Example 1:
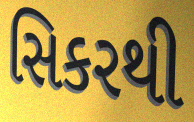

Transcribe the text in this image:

સિકરથી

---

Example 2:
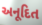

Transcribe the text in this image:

અનૂદિત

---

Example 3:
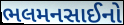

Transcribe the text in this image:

ભલમનસાઈનો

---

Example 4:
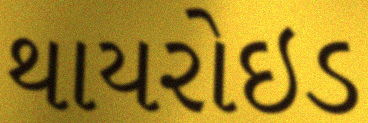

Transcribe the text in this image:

થાયરોઇડ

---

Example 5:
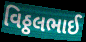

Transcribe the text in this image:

વિઠ્ઠલભાઈ